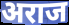
अराज